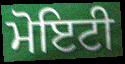
ਮੋਇਟੀ